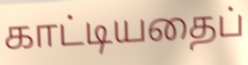
காட்டியதைப்